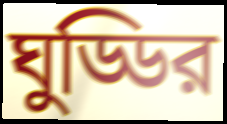
ঘুড্ডির